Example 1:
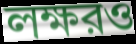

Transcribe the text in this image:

লক্ষরও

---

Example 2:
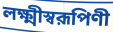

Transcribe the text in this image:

লক্ষ্মীস্বরূপিণী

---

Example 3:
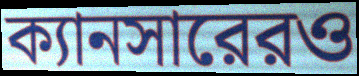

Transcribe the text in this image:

ক্যানসারেরও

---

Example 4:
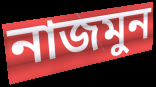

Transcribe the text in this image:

নাজমুন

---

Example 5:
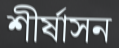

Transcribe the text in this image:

শীর্ষাসন